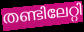
തണ്ടിലേറ്റി